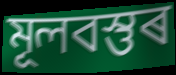
মূলবস্তুৰ